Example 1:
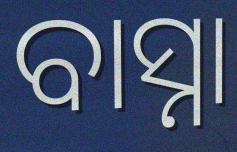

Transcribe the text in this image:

ବାସ୍ନା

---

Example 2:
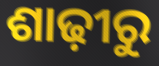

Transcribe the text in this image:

ଶାଢ଼ୀରୁ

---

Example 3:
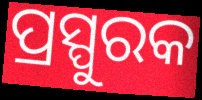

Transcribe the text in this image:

ପ୍ରସ୍ପୁରକ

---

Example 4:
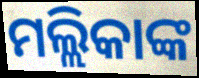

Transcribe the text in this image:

ମଲ୍ଲିକାଙ୍କ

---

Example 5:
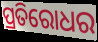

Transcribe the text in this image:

ପ୍ରତିରୋଧର